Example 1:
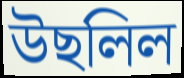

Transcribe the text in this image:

উছলিল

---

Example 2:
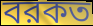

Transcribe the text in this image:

বরকত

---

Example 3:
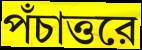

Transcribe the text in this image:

পঁচাত্তরে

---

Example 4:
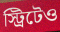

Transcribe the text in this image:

স্ট্রিটেও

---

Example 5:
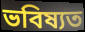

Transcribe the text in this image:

ভবিষ্যত